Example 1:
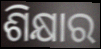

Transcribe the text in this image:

ଶିକ୍ଷାର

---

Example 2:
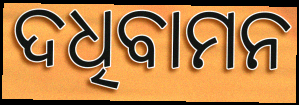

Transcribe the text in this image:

ଦଧିବାମନ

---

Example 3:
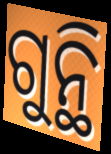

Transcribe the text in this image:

ଗୁନ୍ଥି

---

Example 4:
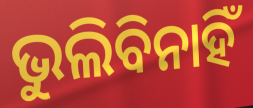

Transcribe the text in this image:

ଭୁଲିବିନାହିଁ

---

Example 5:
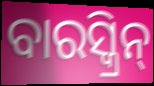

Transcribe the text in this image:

ବାରସ୍କ୍ରିନ୍